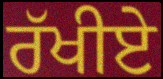
ਰੱਖੀਏ